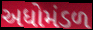
અધોમંડળ